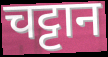
चट्टान